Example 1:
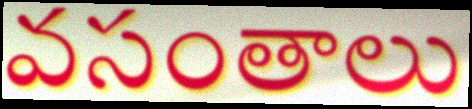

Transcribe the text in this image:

వసంతాలు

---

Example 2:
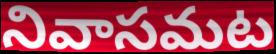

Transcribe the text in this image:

నివాసమట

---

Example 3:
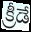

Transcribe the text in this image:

క్రీడే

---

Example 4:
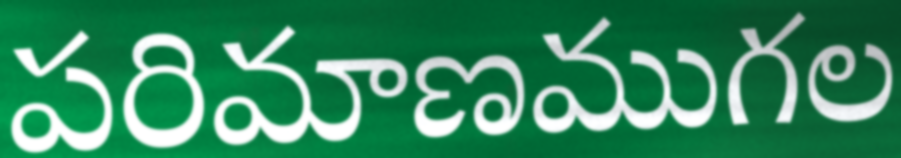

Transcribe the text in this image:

పరిమాణముగల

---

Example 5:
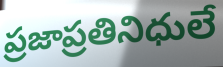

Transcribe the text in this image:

ప్రజాప్రతినిధులే